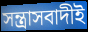
সন্ত্রাসবাদীই